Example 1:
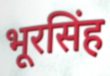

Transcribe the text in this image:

भूरसिंह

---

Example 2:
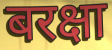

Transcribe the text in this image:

बरक्षा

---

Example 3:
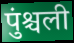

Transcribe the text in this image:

पुंश्चली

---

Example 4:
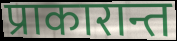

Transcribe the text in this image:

प्राकारान्त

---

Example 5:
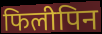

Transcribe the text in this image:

फिलीपिन